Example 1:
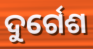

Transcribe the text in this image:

ଦୁର୍ଗେଶ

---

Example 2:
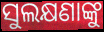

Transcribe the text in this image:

ସୁଲକ୍ଷଣାଙ୍କୁ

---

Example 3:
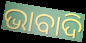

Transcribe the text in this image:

ଭାବାଦି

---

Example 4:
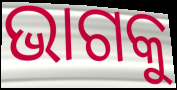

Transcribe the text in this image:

ଭାଗକୁ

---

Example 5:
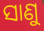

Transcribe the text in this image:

ସାଣୁ